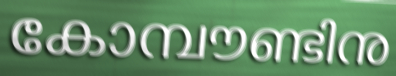
കോമ്പൗണ്ടിനു